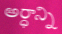
అర్ధాన్ని